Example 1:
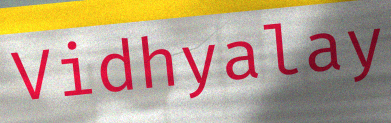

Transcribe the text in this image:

Vidhyalay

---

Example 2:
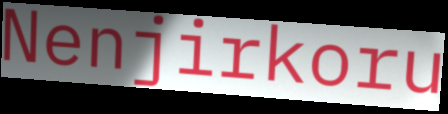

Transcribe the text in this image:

Nenjirkoru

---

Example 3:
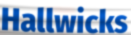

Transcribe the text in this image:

Hallwicks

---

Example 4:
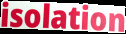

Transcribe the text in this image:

isolation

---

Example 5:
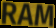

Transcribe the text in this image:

RAM